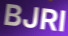
BJRI